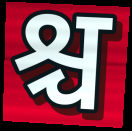
श्च